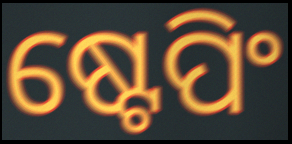
ଷ୍ଟେପିଂ